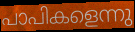
പാപികളെന്നു